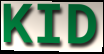
KID